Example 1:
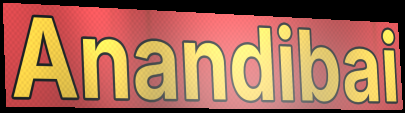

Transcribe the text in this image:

Anandibai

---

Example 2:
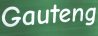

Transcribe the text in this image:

Gauteng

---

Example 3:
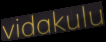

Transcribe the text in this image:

vidakulu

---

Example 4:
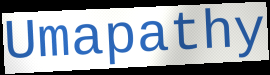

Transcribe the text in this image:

Umapathy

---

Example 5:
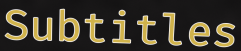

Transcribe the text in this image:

Subtitles